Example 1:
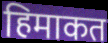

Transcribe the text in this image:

हिमाकत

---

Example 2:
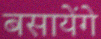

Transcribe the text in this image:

बसायेंगे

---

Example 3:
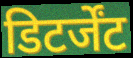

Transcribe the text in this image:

डिटर्जेंट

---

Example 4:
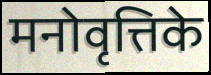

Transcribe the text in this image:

मनोवृत्तिके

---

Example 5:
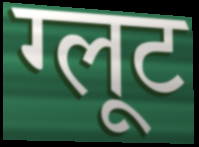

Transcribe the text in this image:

ग्लूट